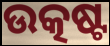
ଉତ୍କଷ୍ଟ